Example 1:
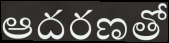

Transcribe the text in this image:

ఆదరణతో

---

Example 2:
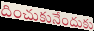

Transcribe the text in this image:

దించుకునేందుకు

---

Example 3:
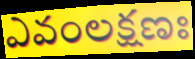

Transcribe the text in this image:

ఎవంలక్షణః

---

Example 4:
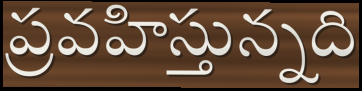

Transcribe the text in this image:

ప్రవహిస్తున్నది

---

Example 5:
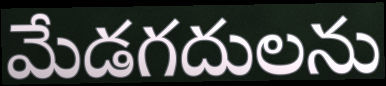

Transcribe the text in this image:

మేడగదులను